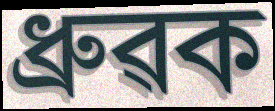
ধ্ৰুৱক